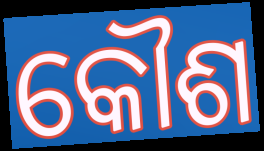
କୌଶ